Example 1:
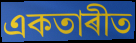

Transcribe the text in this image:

একতাৰীত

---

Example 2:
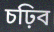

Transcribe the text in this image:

চঢ়িব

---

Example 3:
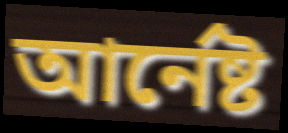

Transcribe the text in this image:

আৰ্নেষ্ট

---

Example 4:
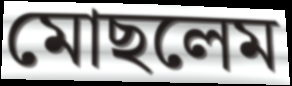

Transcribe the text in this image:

মোছলেম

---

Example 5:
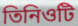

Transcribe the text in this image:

তিনিওটি